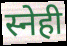
स्नेही